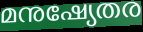
മനുഷ്യേതര